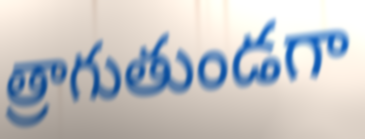
త్రాగుతుండగా